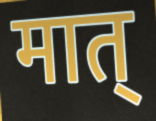
मात्